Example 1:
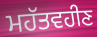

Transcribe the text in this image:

ਮਹੱਤਵਹੀਣ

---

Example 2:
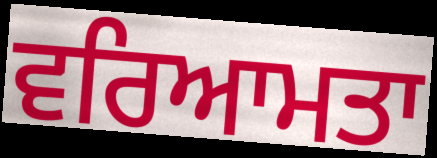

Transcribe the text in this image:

ਵਰਿਆਮਤਾ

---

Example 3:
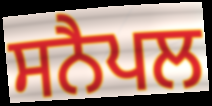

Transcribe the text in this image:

ਸਨੈਪਲ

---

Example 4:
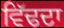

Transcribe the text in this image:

ਵਿੱਢਦਾ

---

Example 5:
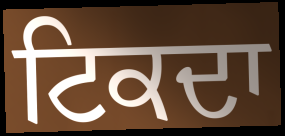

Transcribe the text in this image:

ਟਿਕਦਾ